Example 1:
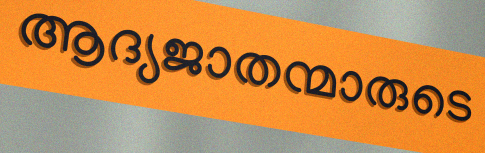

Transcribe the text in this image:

ആദ്യജാതന്മാരുടെ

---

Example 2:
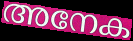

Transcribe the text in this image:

അനേക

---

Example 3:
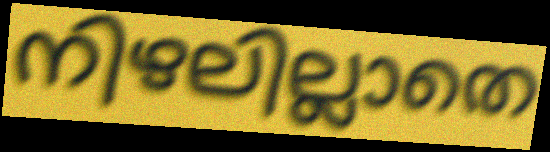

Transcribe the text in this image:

നിഴലില്ലാതെ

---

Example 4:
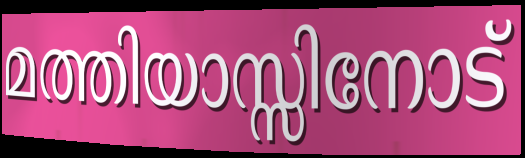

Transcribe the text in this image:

മത്തിയാസ്സിനോട്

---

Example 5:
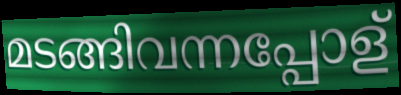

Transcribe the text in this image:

മടങ്ങിവന്നപ്പോള്